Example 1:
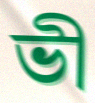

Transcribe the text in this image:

ভী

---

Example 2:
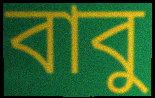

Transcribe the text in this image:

বাবু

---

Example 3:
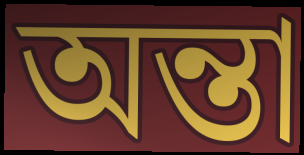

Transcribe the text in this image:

অন্তা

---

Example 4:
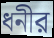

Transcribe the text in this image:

ধনীর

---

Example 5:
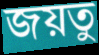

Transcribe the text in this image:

জয়তু